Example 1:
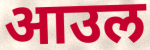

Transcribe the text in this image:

आउल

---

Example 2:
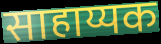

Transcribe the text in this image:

साहाय्यक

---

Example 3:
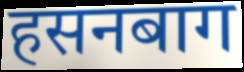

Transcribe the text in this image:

हसनबाग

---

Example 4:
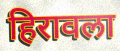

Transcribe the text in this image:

हिरावला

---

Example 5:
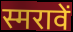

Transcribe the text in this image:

स्मरावें